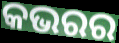
କଭରର